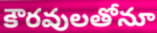
కౌరవులతోనూ